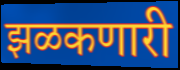
झळकणारी